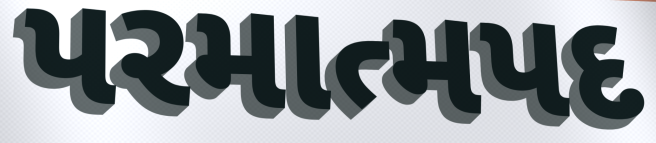
પરમાત્મપદ